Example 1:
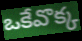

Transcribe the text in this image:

ఒకేవొక్క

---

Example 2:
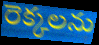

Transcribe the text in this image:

రెక్కలను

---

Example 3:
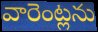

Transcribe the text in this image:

వారెంట్లను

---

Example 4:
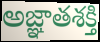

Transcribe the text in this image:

అజ్ఞాతశక్తి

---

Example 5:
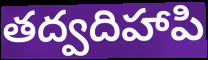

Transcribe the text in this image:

తద్వదిహాపి